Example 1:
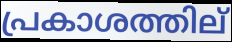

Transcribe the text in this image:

പ്രകാശത്തില്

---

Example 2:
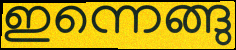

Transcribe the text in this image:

ഇന്നെങ്ങു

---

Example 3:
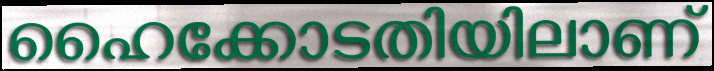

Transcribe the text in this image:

ഹൈക്കോടതിയിലാണ്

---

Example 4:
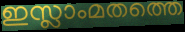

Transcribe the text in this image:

ഇസ്ലാംമതത്തെ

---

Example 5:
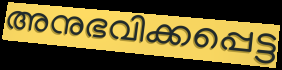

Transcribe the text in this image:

അനുഭവിക്കപ്പെട്ട